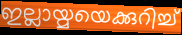
ഇല്ലായ്മയെക്കുറിച്ച്